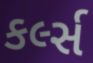
કર્લ્સ